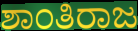
ಶಾಂತಿರಾಜ